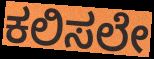
ಕಲಿಸಲೇ